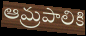
ఆమ్రపాలికి